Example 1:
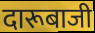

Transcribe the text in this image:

दारूबाजी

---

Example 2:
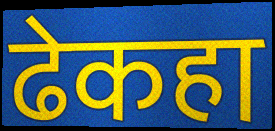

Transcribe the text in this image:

ढेकहा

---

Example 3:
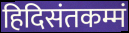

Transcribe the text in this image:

हिदिसंतकम्मं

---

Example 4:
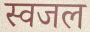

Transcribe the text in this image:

स्वजल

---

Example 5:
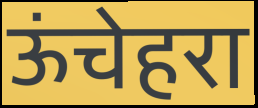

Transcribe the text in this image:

ऊंचेहरा